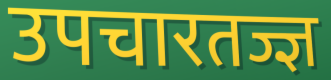
उपचारतज्ज्ञ